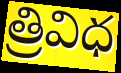
త్రివిధ